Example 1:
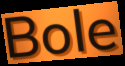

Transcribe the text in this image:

Bole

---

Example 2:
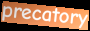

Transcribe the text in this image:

precatory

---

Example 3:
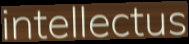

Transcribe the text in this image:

intellectus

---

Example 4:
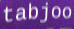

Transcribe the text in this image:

tabjoo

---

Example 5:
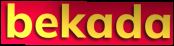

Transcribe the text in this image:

bekada